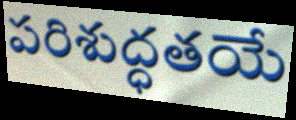
పరిశుద్ధతయే